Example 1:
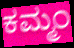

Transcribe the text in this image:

ಕಮ್ಮಂ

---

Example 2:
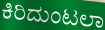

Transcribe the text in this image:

ಕಿರಿದುಂಟಲಾ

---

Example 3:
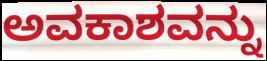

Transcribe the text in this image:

ಅವಕಾಶವನ್ನು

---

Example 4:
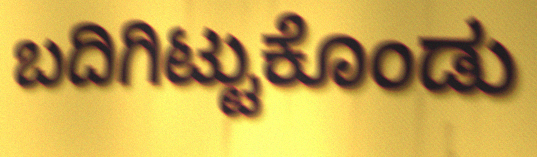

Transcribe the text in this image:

ಬದಿಗಿಟ್ಟುಕೊಂಡು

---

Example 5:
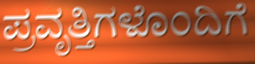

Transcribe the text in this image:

ಪ್ರವೃತ್ತಿಗಳೊಂದಿಗೆ